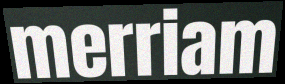
merriam